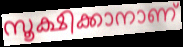
സൂക്ഷിക്കാനാണ്